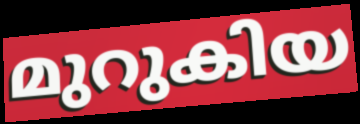
മുറുകിയ